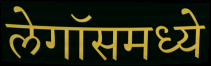
लेगॉसमध्ये